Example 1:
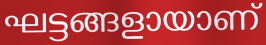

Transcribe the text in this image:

ഘട്ടങ്ങളായാണ്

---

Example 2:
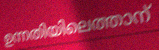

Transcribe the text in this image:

ഉന്നതിയിലെത്താന്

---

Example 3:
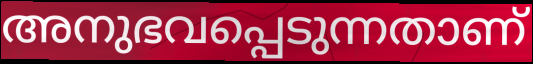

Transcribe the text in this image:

അനുഭവപ്പെടുന്നതാണ്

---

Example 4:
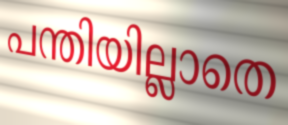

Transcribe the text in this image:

പന്തിയില്ലാതെ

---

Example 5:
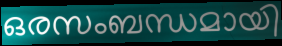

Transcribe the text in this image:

ഒരസംബന്ധമായി